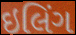
ઇલિંગ